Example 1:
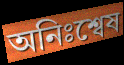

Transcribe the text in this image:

অনিঃশ্বেষ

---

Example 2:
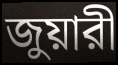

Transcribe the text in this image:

জুয়ারী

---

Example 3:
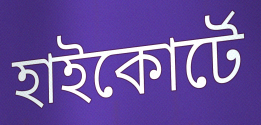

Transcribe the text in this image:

হাইকোর্টে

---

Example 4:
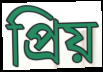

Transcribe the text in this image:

প্রিয়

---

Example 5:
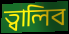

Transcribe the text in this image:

ত্বালিব